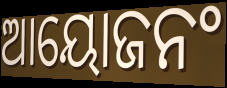
ଆୟୋଜନଂ